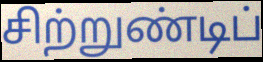
சிற்றுண்டிப்